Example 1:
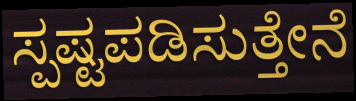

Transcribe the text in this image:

ಸ್ಪಷ್ಟಪಡಿಸುತ್ತೇನೆ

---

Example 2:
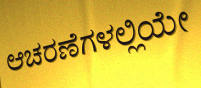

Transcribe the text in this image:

ಆಚರಣೆಗಳಲ್ಲಿಯೇ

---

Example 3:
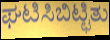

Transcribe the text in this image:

ಘಟಿಸಿಬಿಟ್ಟಿತು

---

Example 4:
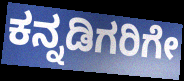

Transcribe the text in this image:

ಕನ್ನಡಿಗರಿಗೇ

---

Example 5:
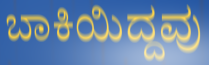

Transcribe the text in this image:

ಬಾಕಿಯಿದ್ದವು